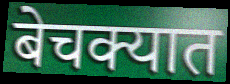
बेचक्यात